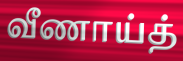
வீணாய்த்